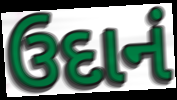
ઉદાનં